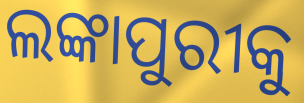
ଲଙ୍କାପୁରୀକୁ